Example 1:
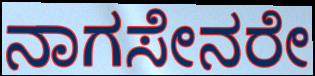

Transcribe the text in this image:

ನಾಗಸೇನರೇ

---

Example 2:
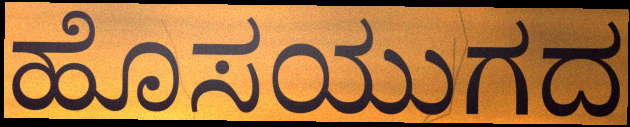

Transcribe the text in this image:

ಹೊಸಯುಗದ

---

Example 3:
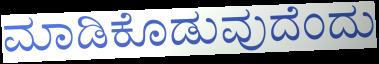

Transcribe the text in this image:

ಮಾಡಿಕೊಡುವುದೆಂದು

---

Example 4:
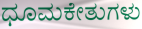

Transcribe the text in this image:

ಧೂಮಕೇತುಗಳು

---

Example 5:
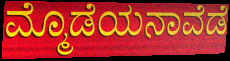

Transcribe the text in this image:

ಮ್ಮೊಡೆಯನಾವೆಡೆ